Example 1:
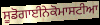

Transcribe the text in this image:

ਸੂਡੋਗਾਈਨੇਕੋਮਾਸਟੀਆ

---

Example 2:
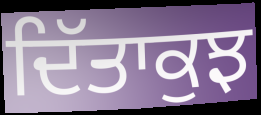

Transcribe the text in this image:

ਦਿੱਤਾਕੁਝ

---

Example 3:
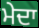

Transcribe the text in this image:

ਮੇਦਾ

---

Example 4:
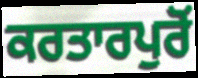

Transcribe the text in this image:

ਕਰਤਾਰਪੁਰੋਂ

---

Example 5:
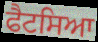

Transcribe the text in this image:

ਫੈਟਸਿਆ